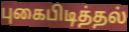
புகைபிடித்தல்